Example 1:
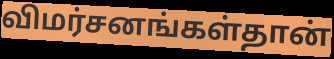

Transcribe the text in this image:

விமர்சனங்கள்தான்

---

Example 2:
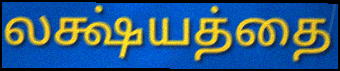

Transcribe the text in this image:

லக்ஷ்யத்தை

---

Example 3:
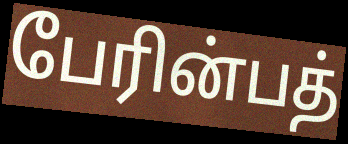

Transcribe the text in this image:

பேரின்பத்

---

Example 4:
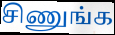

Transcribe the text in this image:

சிணுங்க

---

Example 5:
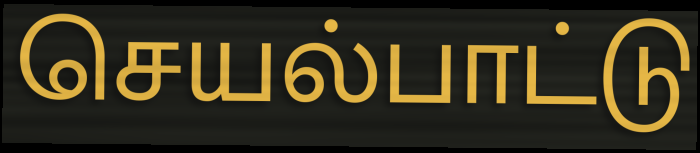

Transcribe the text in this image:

செயல்பாட்டு